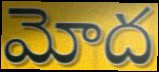
మోద